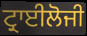
ਟ੍ਰਾਈਲੋਜੀ